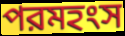
পরমহংস